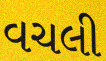
વચલી